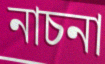
নাচনা